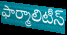
ఫార్మాలిటీస్